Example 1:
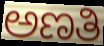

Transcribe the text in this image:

ಅಣತಿ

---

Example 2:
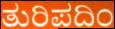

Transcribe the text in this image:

ತುರಿಪದಿಂ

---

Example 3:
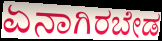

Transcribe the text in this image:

ಏನಾಗಿರಬೇಡ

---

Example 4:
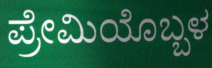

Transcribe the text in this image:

ಪ್ರೇಮಿಯೊಬ್ಬಳ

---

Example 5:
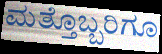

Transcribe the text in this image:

ಮತ್ತೊಬ್ಬರಿಗೂ